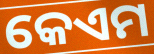
କେଏମ